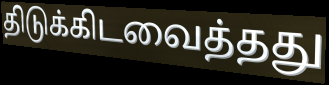
திடுக்கிடவைத்தது